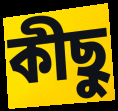
কীছু